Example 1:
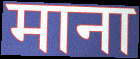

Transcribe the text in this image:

माना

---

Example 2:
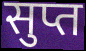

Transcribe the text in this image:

सुप्त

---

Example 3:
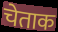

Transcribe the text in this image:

चेताक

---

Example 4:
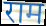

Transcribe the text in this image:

राम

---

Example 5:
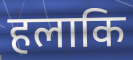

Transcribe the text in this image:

हलाकि